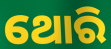
ଥୋରି